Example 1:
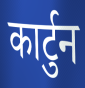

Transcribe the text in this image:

कार्टुन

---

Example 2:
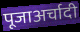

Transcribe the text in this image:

पूजाअर्चादी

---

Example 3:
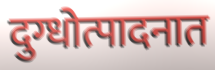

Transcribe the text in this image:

दुग्धोत्पादनात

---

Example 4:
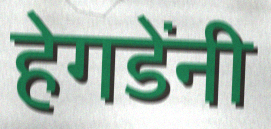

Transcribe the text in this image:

हेगडेंनी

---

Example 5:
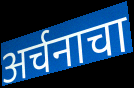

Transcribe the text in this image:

अर्चनाचा